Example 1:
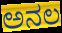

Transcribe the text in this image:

ಅನಲ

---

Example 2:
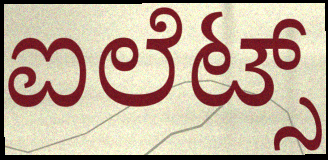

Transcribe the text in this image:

ಐಲೆಟ್ಸ್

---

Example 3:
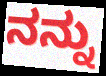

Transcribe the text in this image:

ನನ್ನು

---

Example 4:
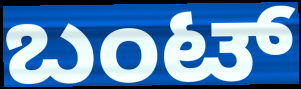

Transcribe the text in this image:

ಬಂಟ್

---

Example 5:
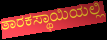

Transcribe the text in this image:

ತಾರಕಸ್ಥಾಯಿಯಲ್ಲಿ